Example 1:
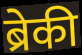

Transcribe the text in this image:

ब्रेकी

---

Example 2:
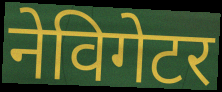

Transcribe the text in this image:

नेविगेटर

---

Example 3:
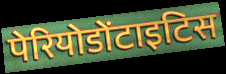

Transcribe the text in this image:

पेरियोडोंटाइटिस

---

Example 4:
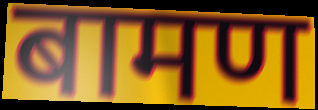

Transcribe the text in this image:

बामण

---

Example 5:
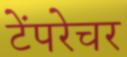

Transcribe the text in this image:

टेंपरेचर